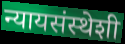
न्यायसंस्थेशी